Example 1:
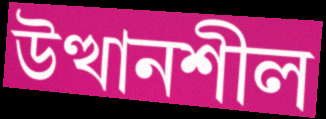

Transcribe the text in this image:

উত্থানশীল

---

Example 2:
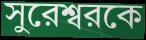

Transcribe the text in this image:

সুরেশ্বরকে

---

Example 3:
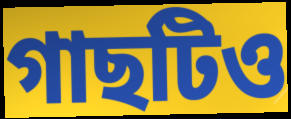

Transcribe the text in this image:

গাছটিও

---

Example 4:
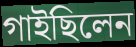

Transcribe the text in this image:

গাইছিলেন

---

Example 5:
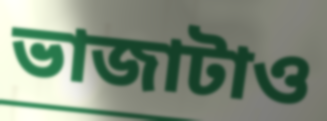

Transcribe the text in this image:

ভাজাটাও